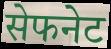
सेफनेट